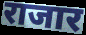
राजार